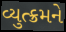
વ્યુત્ક્રમને